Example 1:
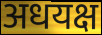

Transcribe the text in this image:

अधयक्ष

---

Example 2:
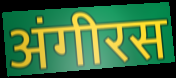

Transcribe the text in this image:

अंगीरस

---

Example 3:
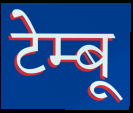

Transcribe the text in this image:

टेम्बू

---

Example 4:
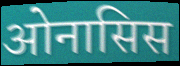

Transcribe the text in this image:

ओनासिस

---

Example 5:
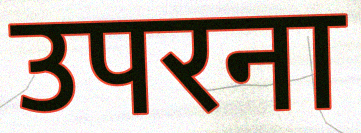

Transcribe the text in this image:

उपरना